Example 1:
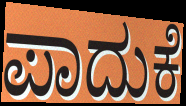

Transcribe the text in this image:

ಪಾದುಕೆ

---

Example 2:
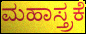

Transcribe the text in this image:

ಮಹಾಸ್ತ್ರಕೆ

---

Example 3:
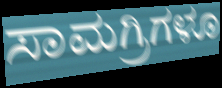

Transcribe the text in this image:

ಸಾಮಗ್ರಿಗಳೂ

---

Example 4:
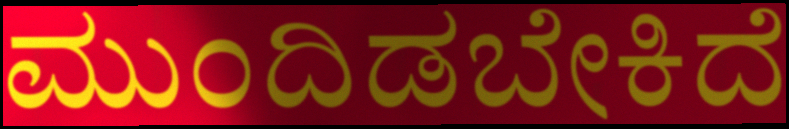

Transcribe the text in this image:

ಮುಂದಿಡಬೇಕಿದೆ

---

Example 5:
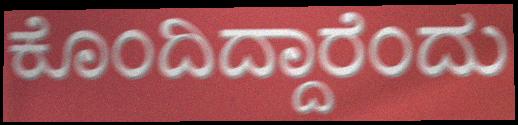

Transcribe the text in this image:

ಕೊಂದಿದ್ದಾರೆಂದು